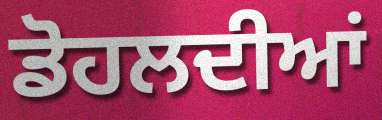
ਡੋਹਲਦੀਆਂ